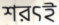
শরৎই